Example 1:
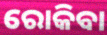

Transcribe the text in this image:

ରୋକିବା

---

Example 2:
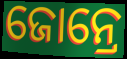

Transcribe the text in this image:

ଜୋନ୍ରେ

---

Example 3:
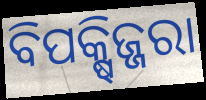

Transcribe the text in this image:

ବିପକ୍ଷ୍ଜ୍ଜିରା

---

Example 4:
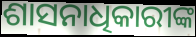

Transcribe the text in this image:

ଶାସନାଧିକାରୀଙ୍କ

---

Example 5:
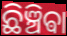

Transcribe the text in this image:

ଛିଞ୍ଚିଵା